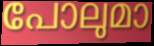
പോലുമാ